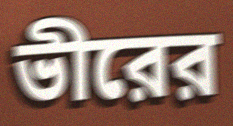
ভীরের